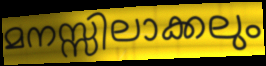
മനസ്സിലാക്കലും